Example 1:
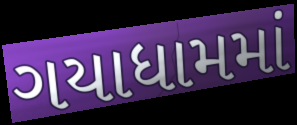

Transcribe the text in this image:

ગયાધામમાં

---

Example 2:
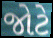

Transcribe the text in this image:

જોટે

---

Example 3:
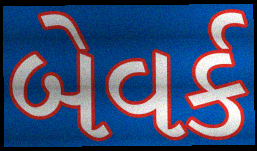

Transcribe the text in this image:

બેવર્ક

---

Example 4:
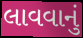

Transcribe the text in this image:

લાવવાનું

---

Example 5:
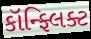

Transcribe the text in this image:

કૉન્ફ્લિક્ટ